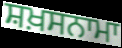
ਸ਼ਖ਼ਸਨਾਮਾ